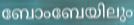
ബോംബേയിലും